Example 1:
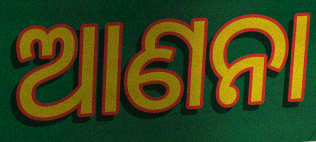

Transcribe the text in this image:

ଆଣନା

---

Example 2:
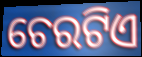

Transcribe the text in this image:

ଚେରଟିଏ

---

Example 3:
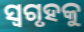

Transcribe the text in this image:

ସ୍ୱଗୃହକୁ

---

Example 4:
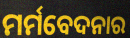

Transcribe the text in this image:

ମର୍ମବେଦନାର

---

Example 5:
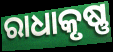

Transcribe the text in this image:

ରାଧାକୃଷ୍ଣ